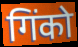
गिंको